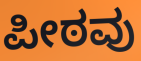
ಪೀಠವು